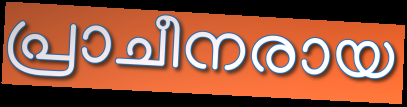
പ്രാചീനരായ